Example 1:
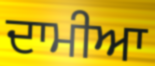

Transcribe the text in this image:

ਦਾਮੀਆ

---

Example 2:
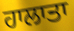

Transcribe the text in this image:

ਹਾਲਾਤਾ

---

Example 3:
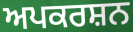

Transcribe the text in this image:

ਅਪਕਰਸ਼ਨ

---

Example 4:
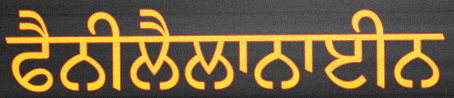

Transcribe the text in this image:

ਫੈਨੀਲੈਲਾਨਾਈਨ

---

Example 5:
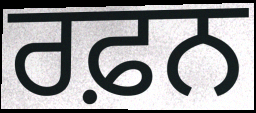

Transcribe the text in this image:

ਰਫ਼ਨ